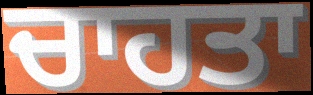
ਚਾਹਤਾ